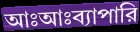
আঃআঃব্যাপারি